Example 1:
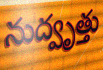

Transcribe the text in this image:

నుద్వృత్తు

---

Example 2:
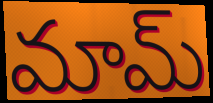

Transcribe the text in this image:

మామ్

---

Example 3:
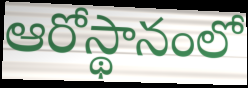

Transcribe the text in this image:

ఆరోస్థానంలో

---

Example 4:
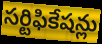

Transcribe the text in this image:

సర్టిఫికేషన్లు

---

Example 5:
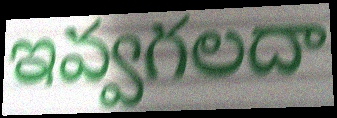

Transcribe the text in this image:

ఇవ్వగలదా